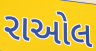
રાઓલ